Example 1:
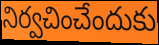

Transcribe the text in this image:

నిర్వచించేందుకు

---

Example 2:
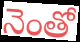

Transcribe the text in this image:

నెంతో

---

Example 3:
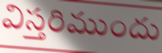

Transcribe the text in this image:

విస్తరిముందు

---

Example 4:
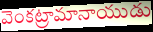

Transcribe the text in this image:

వెంకట్రామానాయుడు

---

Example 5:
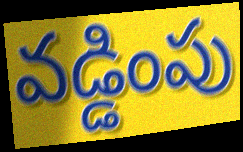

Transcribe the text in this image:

వడ్డింపు